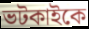
ভটকাইকে